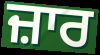
ਜ਼ਾਰ